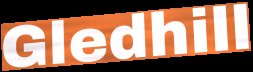
Gledhill